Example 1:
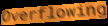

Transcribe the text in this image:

Overflowing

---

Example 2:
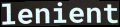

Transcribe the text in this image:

lenient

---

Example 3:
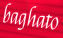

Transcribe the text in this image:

baghato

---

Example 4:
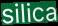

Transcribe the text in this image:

silica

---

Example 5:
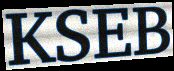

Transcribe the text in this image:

KSEB